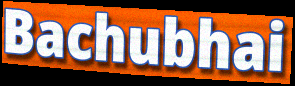
Bachubhai